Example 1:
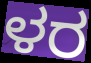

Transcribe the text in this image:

ಳರ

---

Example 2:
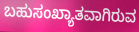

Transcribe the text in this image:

ಬಹುಸಂಖ್ಯಾತವಾಗಿರುವ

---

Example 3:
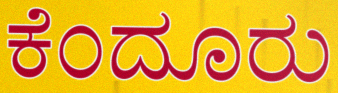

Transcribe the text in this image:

ಕೆಂದೂರು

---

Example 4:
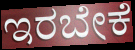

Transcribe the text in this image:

ಇರಬೇಕೆ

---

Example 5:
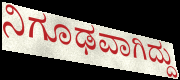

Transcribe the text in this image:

ನಿಗೂಢವಾಗಿದ್ದು